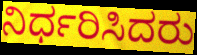
ನಿರ್ಧರಿಸಿದರು